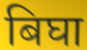
बिघा